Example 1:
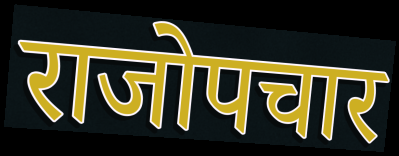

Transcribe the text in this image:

राजोपचार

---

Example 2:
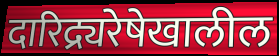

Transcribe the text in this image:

दारिद्र्यरेषेखालील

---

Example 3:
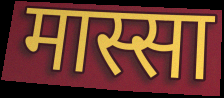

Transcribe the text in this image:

मास्सा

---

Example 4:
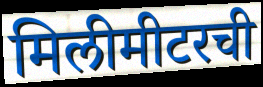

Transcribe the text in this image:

मिलीमीटरची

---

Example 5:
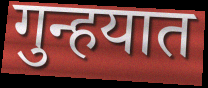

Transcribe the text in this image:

गुन्हयात